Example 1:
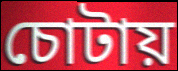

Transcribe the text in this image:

চোটায়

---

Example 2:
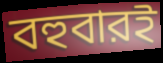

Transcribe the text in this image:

বহুবারই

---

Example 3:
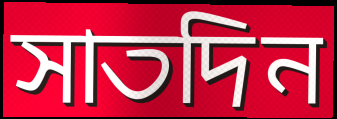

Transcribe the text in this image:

সাতদিন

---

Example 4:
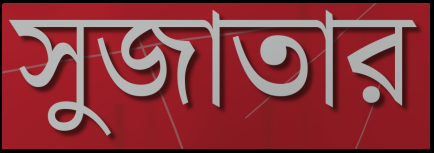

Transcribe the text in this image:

সুজাতার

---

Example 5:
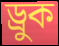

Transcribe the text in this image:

ড্রুক